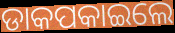
ଡାକପକାଇଲେ